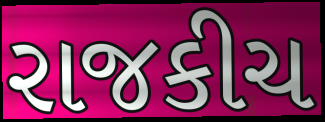
રાજકીચ